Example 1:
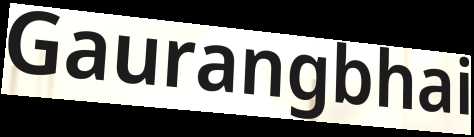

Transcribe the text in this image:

Gaurangbhai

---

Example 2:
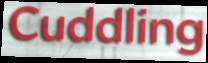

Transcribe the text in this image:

Cuddling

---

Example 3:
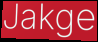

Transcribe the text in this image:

Jakge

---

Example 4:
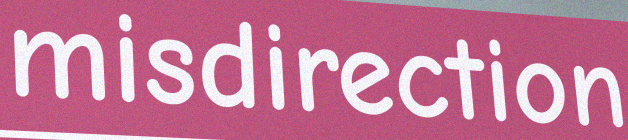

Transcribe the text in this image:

misdirection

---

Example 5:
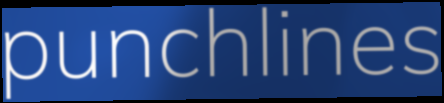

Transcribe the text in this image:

punchlines